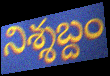
నిశ్శబ్దం